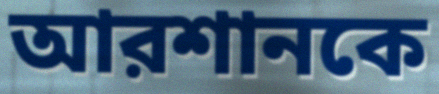
আরশানকে